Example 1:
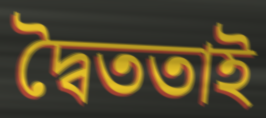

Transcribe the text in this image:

দ্বৈততাই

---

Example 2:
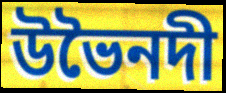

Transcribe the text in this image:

উভৈনদী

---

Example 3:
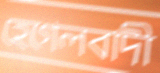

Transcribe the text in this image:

হেগেলবাদী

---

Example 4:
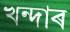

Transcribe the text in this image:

খন্দাৰ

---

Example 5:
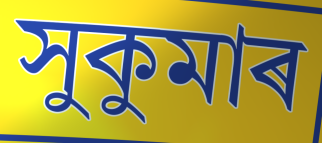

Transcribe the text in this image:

সুকুমাৰ